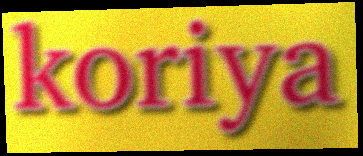
koriya